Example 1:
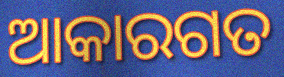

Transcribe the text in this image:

ଆକାରଗତ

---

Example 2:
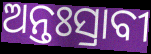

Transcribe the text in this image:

ଅନ୍ତଃସ୍ରାବୀ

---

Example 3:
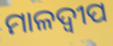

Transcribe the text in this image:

ମାଳଦ୍ବୀପ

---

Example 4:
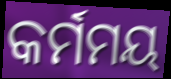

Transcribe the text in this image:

କର୍ମମୟ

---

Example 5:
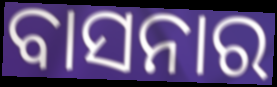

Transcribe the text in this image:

ବାସନାର